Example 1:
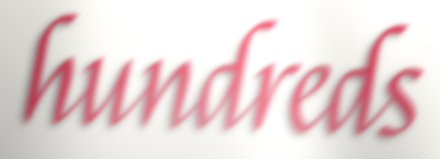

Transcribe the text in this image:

hundreds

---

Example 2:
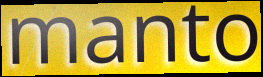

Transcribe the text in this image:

manto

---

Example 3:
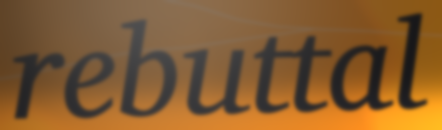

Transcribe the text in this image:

rebuttal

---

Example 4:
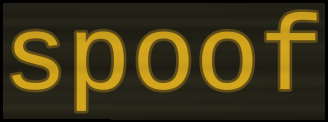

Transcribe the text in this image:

spoof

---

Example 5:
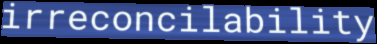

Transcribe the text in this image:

irreconcilability